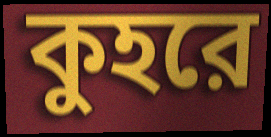
কুহরে